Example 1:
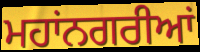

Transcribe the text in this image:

ਮਹਾਂਨਗਰੀਆਂ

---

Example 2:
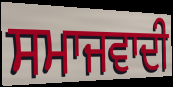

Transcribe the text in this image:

ਸਮਾਜਵਾਦੀ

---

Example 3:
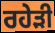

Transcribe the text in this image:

ਰਹੇੜੀ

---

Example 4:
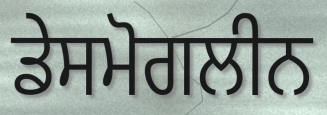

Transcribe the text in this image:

ਡੇਸਮੋਗਲੀਨ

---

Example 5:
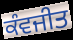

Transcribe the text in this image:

ਕੰਵਜੀਤ